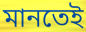
মানতেই